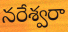
నరేశ్వరా